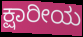
ಕ್ಷಾರೀಯ